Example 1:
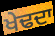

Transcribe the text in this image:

ਖੇਢਦਾ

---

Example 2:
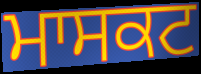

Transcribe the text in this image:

ਮਾਸਕਟ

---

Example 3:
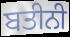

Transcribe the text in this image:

ਬਤੀਨੀ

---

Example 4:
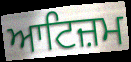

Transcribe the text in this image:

ਆਟਿਜ਼ਮ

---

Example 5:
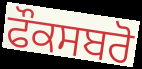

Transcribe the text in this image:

ਫੌਕਸਬਰੋ